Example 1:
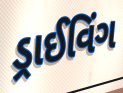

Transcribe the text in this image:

ડ્રાઈવિંગ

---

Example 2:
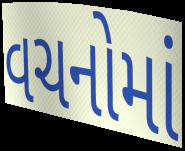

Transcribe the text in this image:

વચનોમાં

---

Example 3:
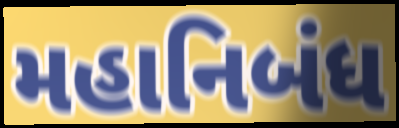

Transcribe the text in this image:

મહાનિબંધ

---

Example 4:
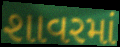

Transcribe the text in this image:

શાવરમાં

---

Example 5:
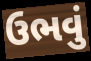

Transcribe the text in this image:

ઉભવું